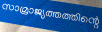
സാമ്രാജ്യത്തത്തിന്റെ